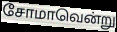
சோமாவென்று